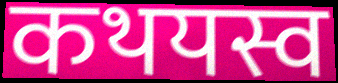
कथयस्व